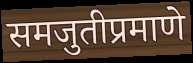
समजुतीप्रमाणे